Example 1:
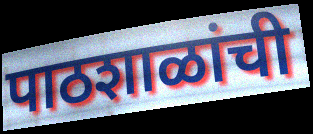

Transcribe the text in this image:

पाठशाळांची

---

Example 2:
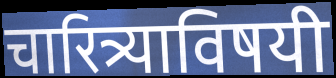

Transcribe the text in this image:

चारित्र्याविषयी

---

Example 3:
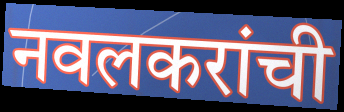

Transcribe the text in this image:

नवलकरांची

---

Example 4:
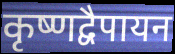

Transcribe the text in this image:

कृष्णद्वैपायन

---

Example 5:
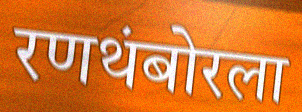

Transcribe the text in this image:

रणथंबोरला